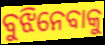
ବୁଝିନେବାକୁ